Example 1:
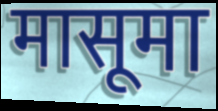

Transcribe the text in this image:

मासूमा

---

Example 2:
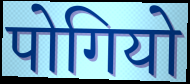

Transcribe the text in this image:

पोगियो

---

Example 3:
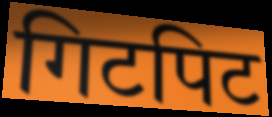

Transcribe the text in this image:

गिटपिट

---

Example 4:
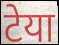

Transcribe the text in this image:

टेया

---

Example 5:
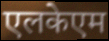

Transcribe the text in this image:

एलकेएम